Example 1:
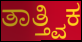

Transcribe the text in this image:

ತಾತ್ತ್ವಿಕ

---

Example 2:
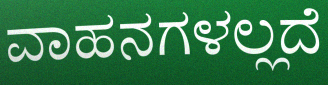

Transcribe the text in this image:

ವಾಹನಗಳಲ್ಲದೆ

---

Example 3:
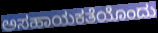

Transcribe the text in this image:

ಅಸಹಾಯಕತೆಯೊಂದು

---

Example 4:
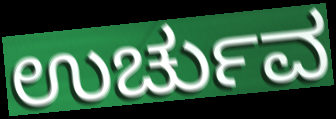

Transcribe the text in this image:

ಉರ್ಚುವ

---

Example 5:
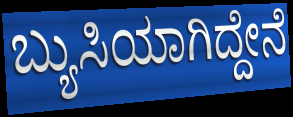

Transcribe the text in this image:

ಬ್ಯುಸಿಯಾಗಿದ್ದೇನೆ